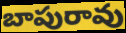
బాపురావు